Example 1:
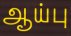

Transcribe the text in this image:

ஆய்பு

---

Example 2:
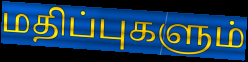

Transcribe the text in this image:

மதிப்புகளும்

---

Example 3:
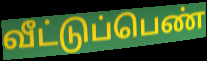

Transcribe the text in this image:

வீட்டுப்பெண்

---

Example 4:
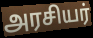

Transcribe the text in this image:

அரசியர்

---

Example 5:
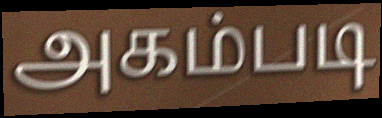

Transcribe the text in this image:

அகம்படி